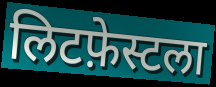
लिटफ़ेस्टला